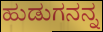
ಹುಡುಗನನ್ನ